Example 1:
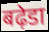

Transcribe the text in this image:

बढ़ेडा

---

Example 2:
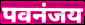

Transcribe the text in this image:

पवनंजय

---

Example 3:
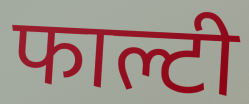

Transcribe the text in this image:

फाल्टी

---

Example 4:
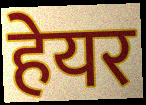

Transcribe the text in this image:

हेयर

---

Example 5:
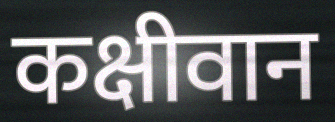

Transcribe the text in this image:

कक्षीवान